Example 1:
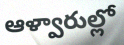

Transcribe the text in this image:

ఆళ్వారుల్లో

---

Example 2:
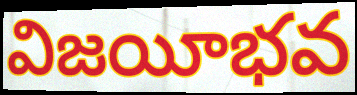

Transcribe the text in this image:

విజయీభవ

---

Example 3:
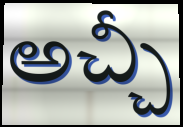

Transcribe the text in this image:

అచ్చీ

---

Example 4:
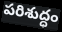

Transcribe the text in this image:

పరిశుద్ధం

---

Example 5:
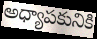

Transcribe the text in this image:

అధ్యాపకునికి